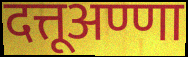
दत्तूअण्णा